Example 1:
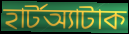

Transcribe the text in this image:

হার্টঅ্যাটাক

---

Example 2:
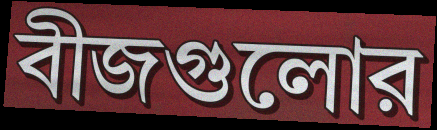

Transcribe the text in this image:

বীজগুলোর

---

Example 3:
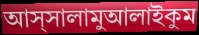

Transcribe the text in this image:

আস্সালামুআলাইকুম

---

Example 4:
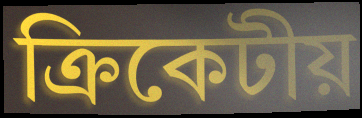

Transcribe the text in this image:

ক্রিকেটীয়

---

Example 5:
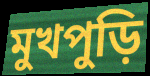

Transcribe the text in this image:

মুখপুড়ি